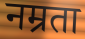
नम्रता